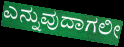
ಎನ್ನುವುದಾಗಲೀ